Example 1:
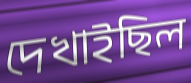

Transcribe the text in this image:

দেখাইছিল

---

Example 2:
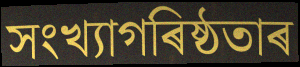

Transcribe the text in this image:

সংখ্যাগৰিষ্ঠতাৰ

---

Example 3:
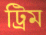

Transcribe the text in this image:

ট্ৰিম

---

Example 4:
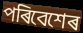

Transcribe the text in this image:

পৰিবেশেৰ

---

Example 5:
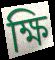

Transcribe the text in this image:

ক্ষি